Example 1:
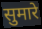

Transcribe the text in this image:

सुमारे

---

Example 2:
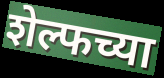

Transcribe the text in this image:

शेल्फच्या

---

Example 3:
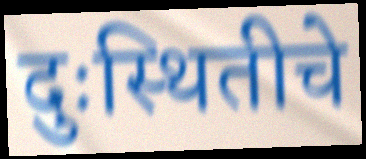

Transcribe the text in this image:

दुःस्थितीचे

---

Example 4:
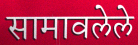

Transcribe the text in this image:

सामावलेले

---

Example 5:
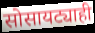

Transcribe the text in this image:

सोसायट्याही